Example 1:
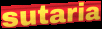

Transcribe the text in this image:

sutaria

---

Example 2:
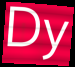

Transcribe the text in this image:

Dy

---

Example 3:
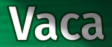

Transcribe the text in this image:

Vaca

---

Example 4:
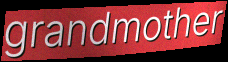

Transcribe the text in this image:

grandmother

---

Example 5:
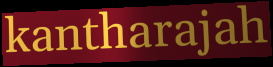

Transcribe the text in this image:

kantharajah